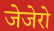
जेजेरो